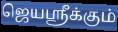
ஜெயஸ்ரீக்கும்